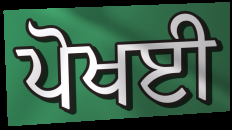
ਪੋਖਈ